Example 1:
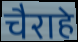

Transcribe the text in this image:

चैराहे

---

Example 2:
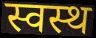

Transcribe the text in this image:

स्वस्थ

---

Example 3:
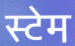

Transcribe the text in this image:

स्टेम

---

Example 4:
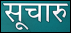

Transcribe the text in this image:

सूचारु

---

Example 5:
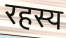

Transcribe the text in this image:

रहस्य